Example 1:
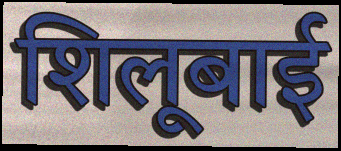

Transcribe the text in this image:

शिलूबाई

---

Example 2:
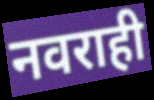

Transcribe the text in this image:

नवराही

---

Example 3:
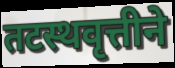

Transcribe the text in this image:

तटस्थवृत्तीने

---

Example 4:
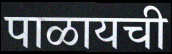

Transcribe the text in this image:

पाळायची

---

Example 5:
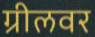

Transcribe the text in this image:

ग्रीलवर